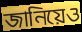
জানিয়েও